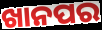
ଖାନପର